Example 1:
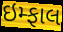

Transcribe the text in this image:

ઇમ્ફાલ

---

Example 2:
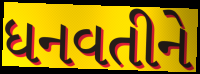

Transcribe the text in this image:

ધનવતીને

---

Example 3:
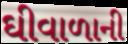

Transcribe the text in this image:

ઘીવાળાની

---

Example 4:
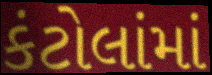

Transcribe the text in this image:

કંટોલાંમાં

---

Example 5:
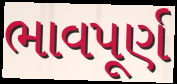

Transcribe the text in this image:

ભાવપૂર્ણ